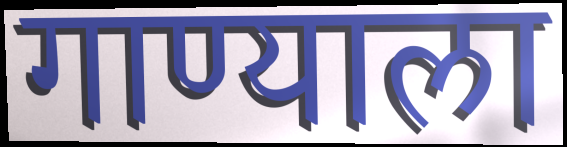
गाण्याला